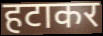
हटाकर